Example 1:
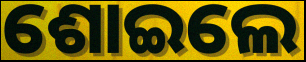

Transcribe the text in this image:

ଶୋଇଲେ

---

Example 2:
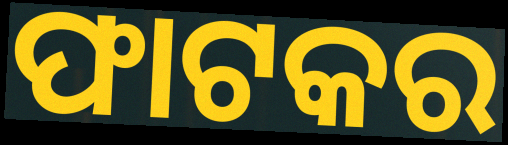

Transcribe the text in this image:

ଫାଟକର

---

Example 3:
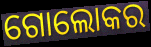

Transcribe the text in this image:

ଗୋଲୋକର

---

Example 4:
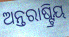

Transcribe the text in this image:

ଅନ୍ତରାଷ୍ଟ୍ରିୟ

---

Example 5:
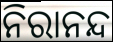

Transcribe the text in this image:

ନିରାନନ୍ଦ